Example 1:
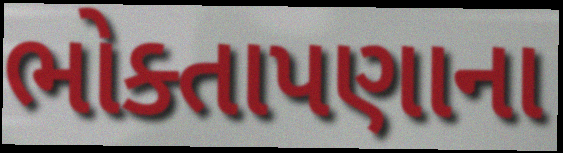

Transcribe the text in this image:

ભોક્તાપણાના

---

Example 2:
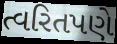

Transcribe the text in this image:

ત્વરિતપણે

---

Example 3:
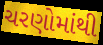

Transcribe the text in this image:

ચરણોમાંથી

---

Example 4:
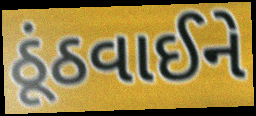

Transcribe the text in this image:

ઠૂંઠવાઈને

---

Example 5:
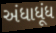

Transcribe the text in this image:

અંધાધૂંધ